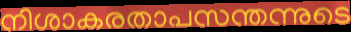
നിശാകരതാപസന്തന്നുടെ